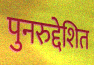
पुनरुद्देशित